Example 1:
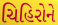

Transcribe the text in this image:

ચિહિરોને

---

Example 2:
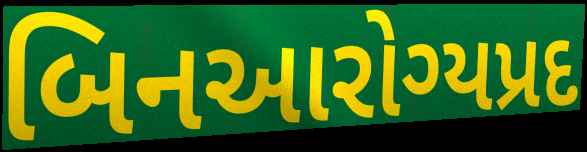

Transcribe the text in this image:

બિનઆરોગ્યપ્રદ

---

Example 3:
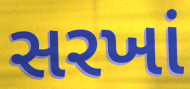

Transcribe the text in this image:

સરખાં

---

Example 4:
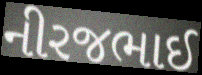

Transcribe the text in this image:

નીરજભાઈ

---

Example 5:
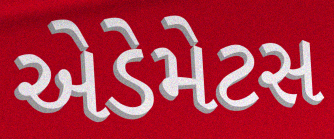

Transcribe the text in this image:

એડેમેટસ